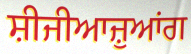
ਸ਼ੀਜੀਆਜ਼ੁਆਂਗ